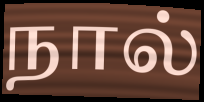
நால்